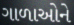
ગાળાઓને